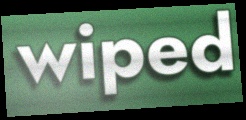
wiped